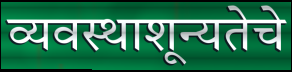
व्यवस्थाशून्यतेचे